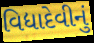
વિદ્યાદેવીનું